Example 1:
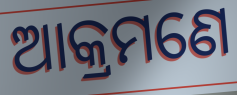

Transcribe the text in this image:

ଆକ୍ରମଣେ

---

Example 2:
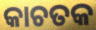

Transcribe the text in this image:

କାଚତକ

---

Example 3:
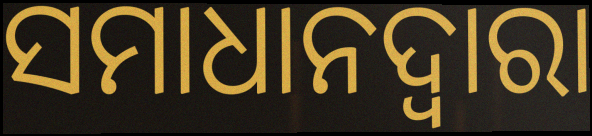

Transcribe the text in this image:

ସମାଧାନଦ୍ୱାରା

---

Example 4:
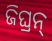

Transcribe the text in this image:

ଜିଘ୍ରନ୍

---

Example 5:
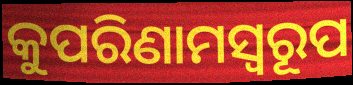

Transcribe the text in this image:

କୁପରିଣାମସ୍ୱରୂପ